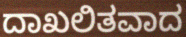
ದಾಖಲಿತವಾದ